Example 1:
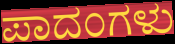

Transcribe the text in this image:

ಪಾದಂಗಳು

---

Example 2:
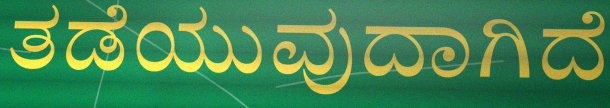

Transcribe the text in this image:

ತಡೆಯುವುದಾಗಿದೆ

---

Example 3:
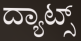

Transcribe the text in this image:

ದ್ಯಾಟ್ಸ್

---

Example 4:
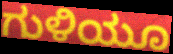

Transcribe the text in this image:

ಗುಳಿಯೂ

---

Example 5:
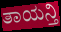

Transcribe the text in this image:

ತಾಯನ್ತಿ